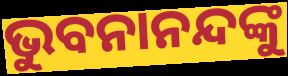
ଭୁବନାନନ୍ଦଙ୍କୁ